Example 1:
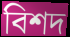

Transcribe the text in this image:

বিশদ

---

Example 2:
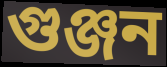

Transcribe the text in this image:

গুঞ্জন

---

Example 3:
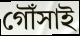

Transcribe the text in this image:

গৌঁসাই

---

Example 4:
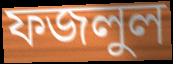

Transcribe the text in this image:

ফজলুল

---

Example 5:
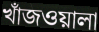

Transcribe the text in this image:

খাঁজওয়ালা